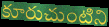
కూరుచుంటిని